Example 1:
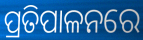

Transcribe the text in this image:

ପ୍ରତିପାଳନରେ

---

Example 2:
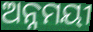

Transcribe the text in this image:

ଅନ୍ନମୟୀ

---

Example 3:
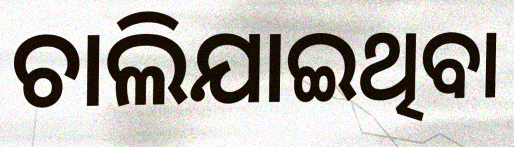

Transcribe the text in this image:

ଚାଲିଯାଇଥିବା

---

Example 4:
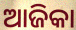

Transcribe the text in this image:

ଆଜିକା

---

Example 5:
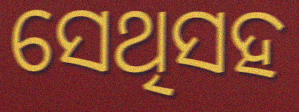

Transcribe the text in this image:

ସେଥିସହ